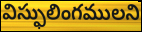
విస్ఫులింగములని